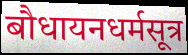
बौधायनधर्मसूत्र